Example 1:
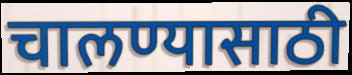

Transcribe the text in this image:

चालण्यासाठी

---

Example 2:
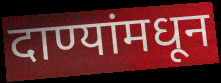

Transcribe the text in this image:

दाण्यांमधून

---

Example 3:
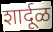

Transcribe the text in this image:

शार्दूळ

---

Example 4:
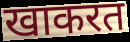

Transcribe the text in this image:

खाकरत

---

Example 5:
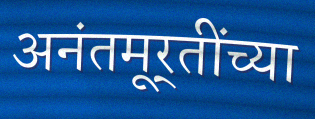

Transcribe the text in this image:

अनंतमूर्तींच्या